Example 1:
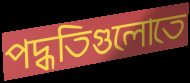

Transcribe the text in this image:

পদ্ধতিগুলোতে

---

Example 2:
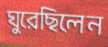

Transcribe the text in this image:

ঘুরেছিলেন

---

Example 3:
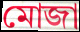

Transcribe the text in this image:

মোজা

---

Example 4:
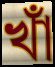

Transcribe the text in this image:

খাঁ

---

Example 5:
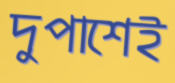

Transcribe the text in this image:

দুপাশেই